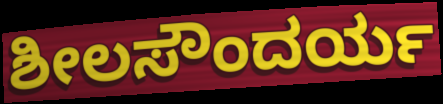
ಶೀಲಸೌಂದರ್ಯ